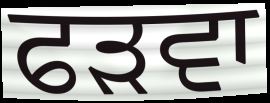
ਫੜਵਾ